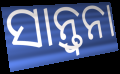
ସାନ୍ତ୍ୱନା